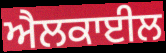
ਐਲਕਾਈਲ